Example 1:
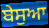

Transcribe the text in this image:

ਬੇਸੁਆ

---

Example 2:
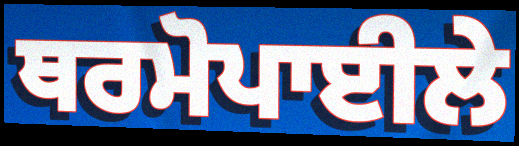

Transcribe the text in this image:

ਥਰਮੋਪਾਈਲੇ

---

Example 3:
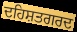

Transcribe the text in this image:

ਦਹਿਸ਼ਤਗਰਦ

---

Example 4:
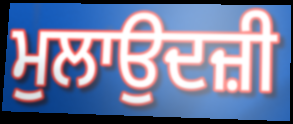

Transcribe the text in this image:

ਮੁਲਾਉਦਜ਼ੀ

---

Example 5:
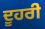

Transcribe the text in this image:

ਦੂਹਰੀ